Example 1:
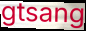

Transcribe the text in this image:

gtsang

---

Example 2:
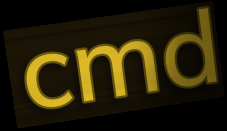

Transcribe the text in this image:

cmd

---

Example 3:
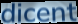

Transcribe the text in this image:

dicent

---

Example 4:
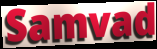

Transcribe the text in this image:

Samvad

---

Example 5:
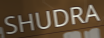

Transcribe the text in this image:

SHUDRA